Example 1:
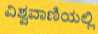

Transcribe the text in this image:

ವಿಶ್ವವಾಣಿಯಲ್ಲಿ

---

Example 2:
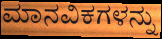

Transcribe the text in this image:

ಮಾನವಿಕಗಳನ್ನು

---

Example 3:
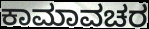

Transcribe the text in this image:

ಕಾಮಾವಚರ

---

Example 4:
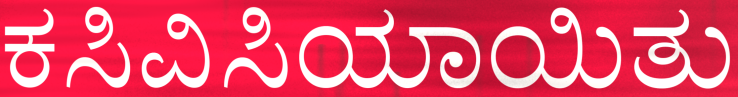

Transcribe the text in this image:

ಕಸಿವಿಸಿಯಾಯಿತು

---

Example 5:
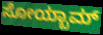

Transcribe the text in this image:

ಸೋಯ್ಬಾಮ್